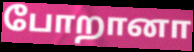
போறானா